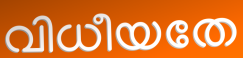
വിധീയതേ